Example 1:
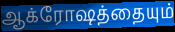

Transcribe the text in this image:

ஆக்ரோஷத்தையும்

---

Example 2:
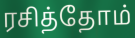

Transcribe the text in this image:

ரசித்தோம்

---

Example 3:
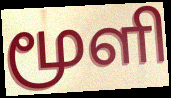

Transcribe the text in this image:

மூளி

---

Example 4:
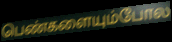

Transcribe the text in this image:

பெண்களையும்போல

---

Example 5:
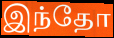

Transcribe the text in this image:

இந்தோ